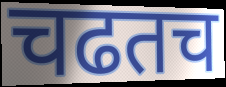
चढतच